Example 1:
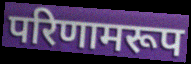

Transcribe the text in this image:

परिणामरूप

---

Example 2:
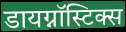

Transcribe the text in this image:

डायग्नॉस्टिक्स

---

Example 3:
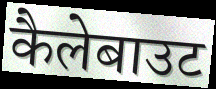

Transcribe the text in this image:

कैलेबाउट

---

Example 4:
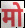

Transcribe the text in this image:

मो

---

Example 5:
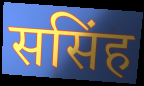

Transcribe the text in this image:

ससिंह